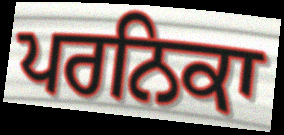
ਪਰਨਿਕਾ